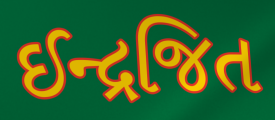
ઈન્દ્રજિત